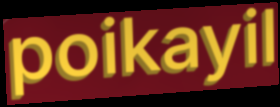
poikayil